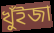
খুঁইজা